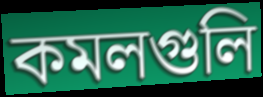
কমলগুলি